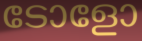
ടോളോ